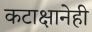
कटाक्षानेही